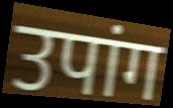
उपांग